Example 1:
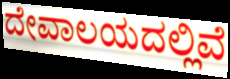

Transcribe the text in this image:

ದೇವಾಲಯದಲ್ಲಿವೆ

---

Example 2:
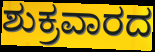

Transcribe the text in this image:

ಶುಕ್ರವಾರದ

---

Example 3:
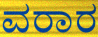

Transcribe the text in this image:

ವರಾರ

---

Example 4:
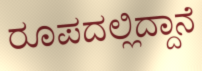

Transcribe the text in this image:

ರೂಪದಲ್ಲಿದ್ದಾನೆ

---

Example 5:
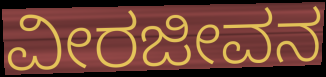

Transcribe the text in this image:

ವೀರಜೀವನ